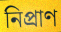
নিপ্রাণ